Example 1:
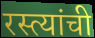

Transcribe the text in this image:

रस्त्यांची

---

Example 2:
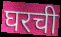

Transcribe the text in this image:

घरची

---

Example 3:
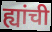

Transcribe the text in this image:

ह्यांची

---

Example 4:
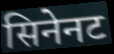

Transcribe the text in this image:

सिनेनट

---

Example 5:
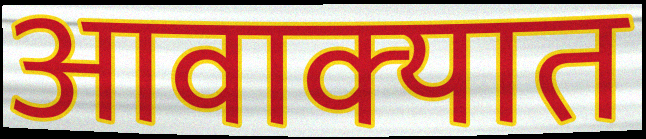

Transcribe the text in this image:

आवाक्‍यात